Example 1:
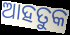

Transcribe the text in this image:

ଆହତୁକ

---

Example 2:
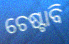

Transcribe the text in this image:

ଚେଷ୍ଟାବି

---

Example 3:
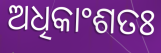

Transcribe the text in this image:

ଅଧିକାଂଶତଃ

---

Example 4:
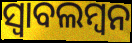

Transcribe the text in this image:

ସ୍ୱାବଲମ୍ବନ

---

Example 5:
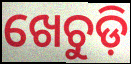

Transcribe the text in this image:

ଖେଚୁଡ଼ି